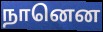
நானென